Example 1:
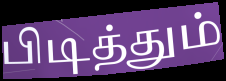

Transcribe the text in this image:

பிடித்தும்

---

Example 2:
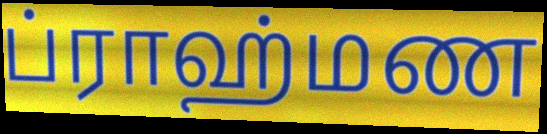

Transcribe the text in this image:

ப்ராஹ்மண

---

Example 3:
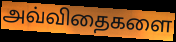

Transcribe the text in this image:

அவ்விதைகளை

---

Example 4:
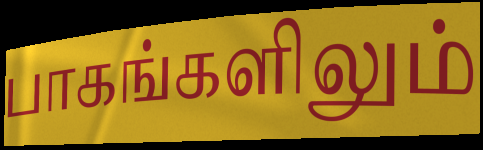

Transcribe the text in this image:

பாகங்களிலும்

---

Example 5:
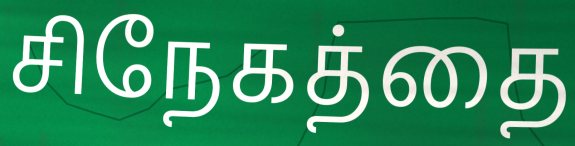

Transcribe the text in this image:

சிநேகத்தை